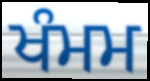
ਖੰਮਮ